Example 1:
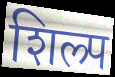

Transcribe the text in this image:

शिल्प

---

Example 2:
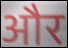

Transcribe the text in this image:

और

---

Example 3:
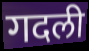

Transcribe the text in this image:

गदली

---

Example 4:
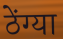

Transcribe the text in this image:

ठेंग्या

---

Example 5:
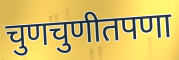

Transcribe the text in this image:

चुणचुणीतपणा